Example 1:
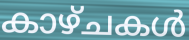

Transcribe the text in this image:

കാഴ്ചകൾ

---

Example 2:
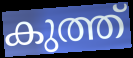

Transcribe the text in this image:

കുത്ത്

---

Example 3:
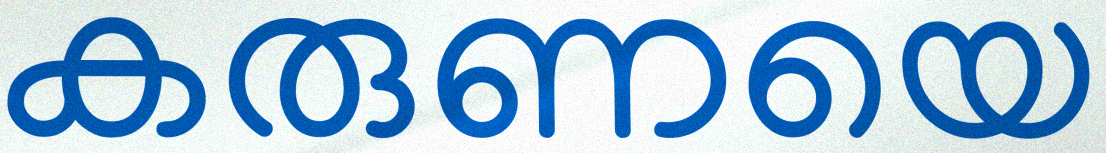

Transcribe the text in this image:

കരുണയെ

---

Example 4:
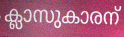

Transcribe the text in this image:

ക്ലാസുകാരന്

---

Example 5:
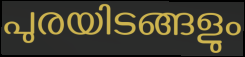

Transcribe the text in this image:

പുരയിടങ്ങളും